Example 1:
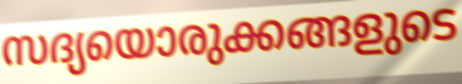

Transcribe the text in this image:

സദ്യയൊരുക്കങ്ങളുടെ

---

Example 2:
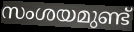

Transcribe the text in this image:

സംശയമുണ്ട്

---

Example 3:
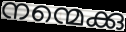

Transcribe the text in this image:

നന്മെക്കു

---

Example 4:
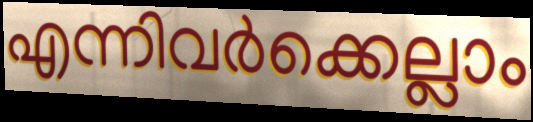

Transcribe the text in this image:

എന്നിവർക്കെല്ലാം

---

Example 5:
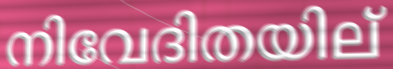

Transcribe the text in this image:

നിവേദിതയില്